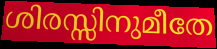
ശിരസ്സിനുമീതേ